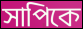
সাপিকে